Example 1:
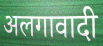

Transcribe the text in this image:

अलगावादी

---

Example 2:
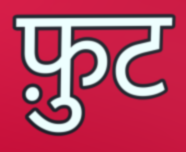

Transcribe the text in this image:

फ़ुट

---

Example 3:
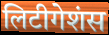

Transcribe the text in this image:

लिटीगेशंस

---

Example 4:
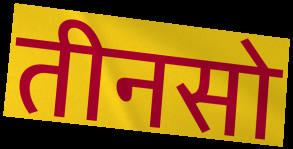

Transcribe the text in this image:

तीनसो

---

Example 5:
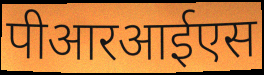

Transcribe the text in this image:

पीआरआईएस